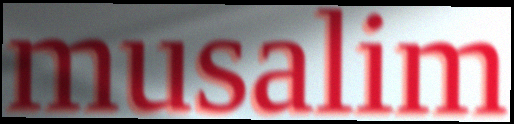
musalim